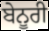
ਬੇਨੂਰੀ